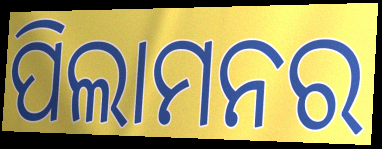
ପିଲାମନର